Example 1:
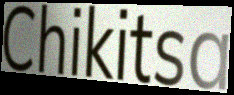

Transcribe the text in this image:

Chikitsa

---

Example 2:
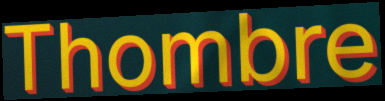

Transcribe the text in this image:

Thombre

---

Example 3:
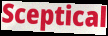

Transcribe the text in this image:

Sceptical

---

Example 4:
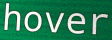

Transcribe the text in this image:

hover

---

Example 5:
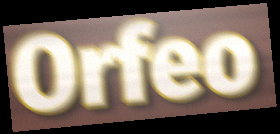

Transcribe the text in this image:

Orfeo